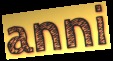
anni